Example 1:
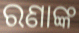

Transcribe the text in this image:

ରଣାଙ୍କ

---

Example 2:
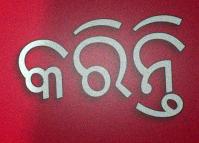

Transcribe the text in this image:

କରିନ୍ତି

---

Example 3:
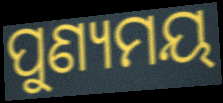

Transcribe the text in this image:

ପୁଣ୍ୟମୟ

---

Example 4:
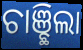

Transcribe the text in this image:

ଚାଞ୍ଛିଲା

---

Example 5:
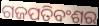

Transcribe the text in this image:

ଗଜପତିବଂଶର